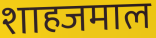
शाहजमाल